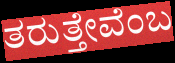
ತರುತ್ತೇವೆಂಬ